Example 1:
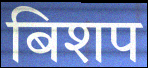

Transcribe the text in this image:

बिशप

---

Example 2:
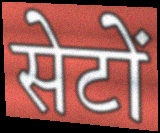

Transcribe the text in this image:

सेटों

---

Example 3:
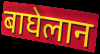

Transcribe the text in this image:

बाघेलान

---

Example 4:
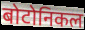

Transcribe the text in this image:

बोटोनिकल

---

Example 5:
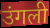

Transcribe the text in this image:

उंगली